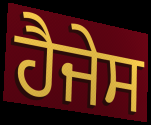
ਹੈਜੇਸ